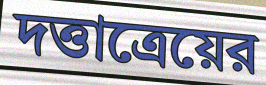
দত্তাত্রেয়ের